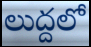
లుద్దలో